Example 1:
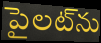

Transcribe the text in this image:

పైలట్‌ను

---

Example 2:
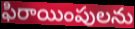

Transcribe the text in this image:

ఫిరాయింపులను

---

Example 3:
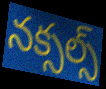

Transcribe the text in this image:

నక్సల్స్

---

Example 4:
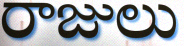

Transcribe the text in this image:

రాజులు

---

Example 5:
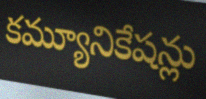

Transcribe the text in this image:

కమ్యూనికేషన్లు